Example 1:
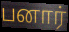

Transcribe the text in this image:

பனார்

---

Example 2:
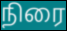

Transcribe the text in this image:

நிரை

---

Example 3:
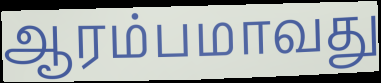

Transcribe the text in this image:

ஆரம்பமாவது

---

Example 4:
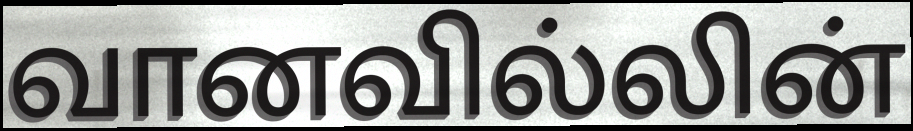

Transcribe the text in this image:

வானவில்லின்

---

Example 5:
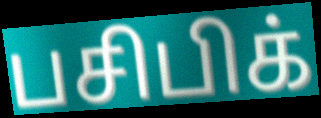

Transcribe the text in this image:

பசிபிக்